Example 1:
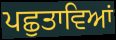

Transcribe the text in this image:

ਪਛੁਤਾਵਿਆਂ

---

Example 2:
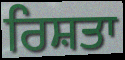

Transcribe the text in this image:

ਰਿਸ਼ਤਾ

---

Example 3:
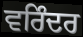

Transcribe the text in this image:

ਵਰਿੰਦਰ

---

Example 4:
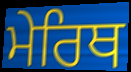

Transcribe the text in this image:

ਮੇਰਿਥ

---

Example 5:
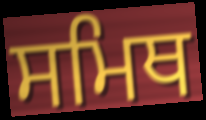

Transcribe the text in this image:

ਸਮਿਥ